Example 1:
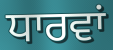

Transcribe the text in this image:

ਧਾਰਵਾਂ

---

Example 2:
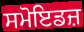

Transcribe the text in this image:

ਸਮੋਇਡਜ਼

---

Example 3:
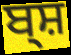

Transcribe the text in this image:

ਬ੍ਸ਼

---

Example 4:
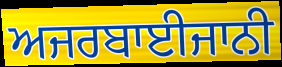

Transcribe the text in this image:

ਅਜਰਬਾਈਜਾਨੀ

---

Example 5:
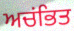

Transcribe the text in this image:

ਅਚਂਭਿਤ